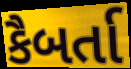
કૈબર્તા